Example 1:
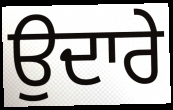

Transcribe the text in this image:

ਉਦਾਰੇ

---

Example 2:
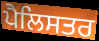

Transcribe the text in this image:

ਪੈਲਿਸਤਰ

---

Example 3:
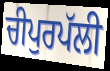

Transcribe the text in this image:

ਚੀਪੁਰਪੱਲੀ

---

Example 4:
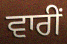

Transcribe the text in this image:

ਵਾਰੀਂ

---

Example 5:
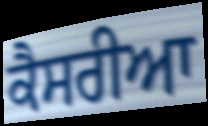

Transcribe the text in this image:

ਕੈਸਰੀਆ